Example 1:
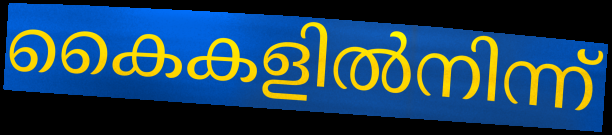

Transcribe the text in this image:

കൈകളിൽനിന്ന്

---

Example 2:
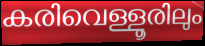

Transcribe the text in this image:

കരിവെള്ളൂരിലും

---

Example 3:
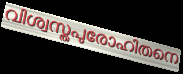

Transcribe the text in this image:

വിശ്വസ്തപുരോഹിതനെ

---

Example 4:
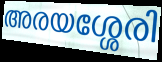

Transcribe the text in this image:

അരയശ്ശേരി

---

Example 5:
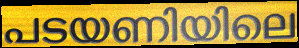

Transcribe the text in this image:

പടയണിയിലെ